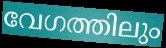
വേഗത്തിലും